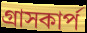
গ্রাসকার্প